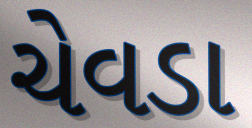
ચેવડા